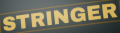
STRINGER